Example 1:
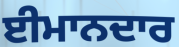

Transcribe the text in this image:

ਈਮਾਨਦਾਰ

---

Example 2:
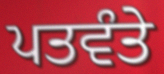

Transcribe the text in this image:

ਪਤਵੰਤੇ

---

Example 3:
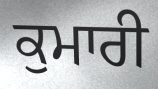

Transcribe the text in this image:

ਕੁਮਾਰੀ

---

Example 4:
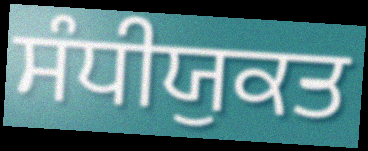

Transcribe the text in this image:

ਸੰਧੀਯੁਕਤ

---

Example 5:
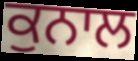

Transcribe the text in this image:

ਕੁਨਾਲ